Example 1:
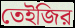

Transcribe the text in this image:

তেইজির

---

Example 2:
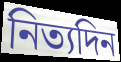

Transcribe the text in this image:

নিত্যদিন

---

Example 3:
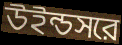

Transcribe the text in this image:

উইন্ডসরে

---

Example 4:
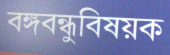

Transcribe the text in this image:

বঙ্গবন্ধুবিষয়ক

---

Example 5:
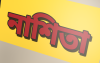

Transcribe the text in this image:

নাশিতা